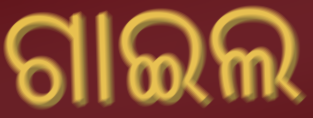
ଗାଇଲ